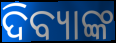
ଦିବ୍ୟାଙ୍କ